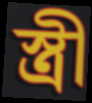
স্ত্রী